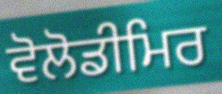
ਵੋਲੋਡੀਮਿਰ